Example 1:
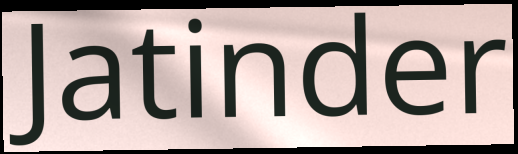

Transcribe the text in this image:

Jatinder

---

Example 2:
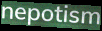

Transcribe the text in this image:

nepotism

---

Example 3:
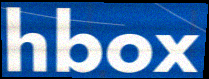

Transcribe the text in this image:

hbox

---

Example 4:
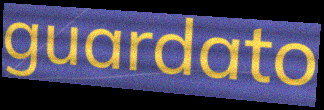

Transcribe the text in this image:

guardato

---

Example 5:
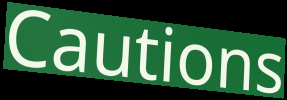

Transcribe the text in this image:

Cautions